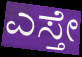
ಎಸ್ತೇ